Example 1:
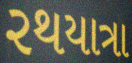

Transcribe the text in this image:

રથયાત્રા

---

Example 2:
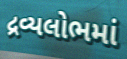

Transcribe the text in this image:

દ્રવ્યલોભમાં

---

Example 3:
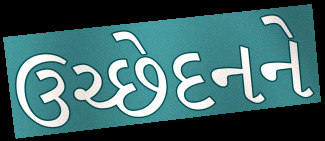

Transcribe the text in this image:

ઉચ્છેદનને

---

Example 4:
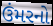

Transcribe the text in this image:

ઉંમરનો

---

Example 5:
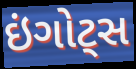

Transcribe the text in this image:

ઇંગોટ્સ